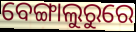
ବେଙ୍ଗାଲୁରୁରେ